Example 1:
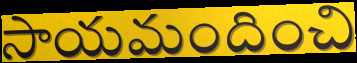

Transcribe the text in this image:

సాయమందించి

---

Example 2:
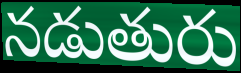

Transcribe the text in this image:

నడుతురు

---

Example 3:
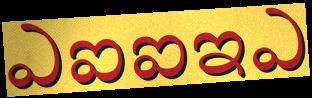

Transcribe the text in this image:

ఎఐఐఇఎ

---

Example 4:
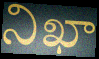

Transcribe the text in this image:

నిఖా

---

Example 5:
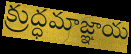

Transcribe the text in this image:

క్రుద్ధమాజ్ఞాయ